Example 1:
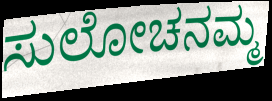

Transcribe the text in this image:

ಸುಲೋಚನಮ್ಮ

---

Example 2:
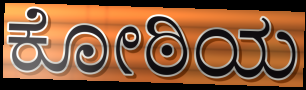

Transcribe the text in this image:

ಕೋಠಿಯ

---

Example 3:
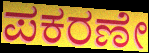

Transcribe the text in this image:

ಪಕರಣೇ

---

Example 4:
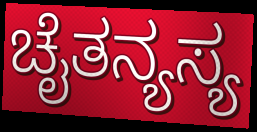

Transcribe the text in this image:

ಚೈತನ್ಯಸ್ಯ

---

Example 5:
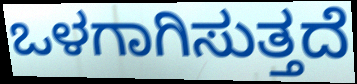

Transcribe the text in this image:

ಒಳಗಾಗಿಸುತ್ತದೆ